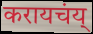
करायचंय्